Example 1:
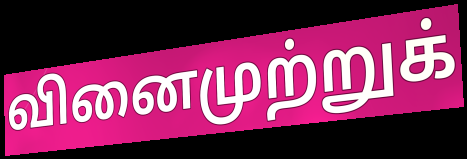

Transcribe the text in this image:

வினைமுற்றுக்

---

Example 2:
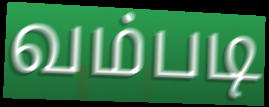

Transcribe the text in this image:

வம்படி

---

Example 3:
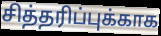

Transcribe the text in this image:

சித்தரிப்புக்காக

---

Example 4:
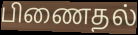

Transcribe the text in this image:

பிணைதல்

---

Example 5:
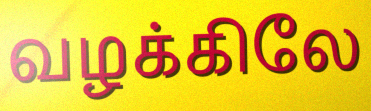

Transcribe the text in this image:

வழக்கிலே